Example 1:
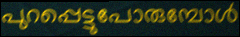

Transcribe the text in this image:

പുറപ്പെട്ടുപോരുമ്പോൾ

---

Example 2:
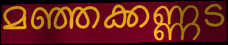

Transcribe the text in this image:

മഞ്ഞക്കണ്ണട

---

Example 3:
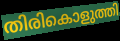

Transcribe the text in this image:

തിരികൊളുത്തി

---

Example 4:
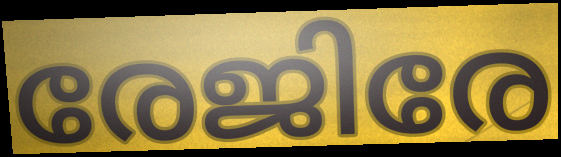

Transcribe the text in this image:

രേജിരേ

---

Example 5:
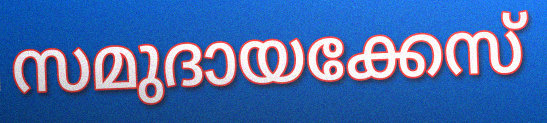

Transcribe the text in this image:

സമുദായക്കേസ്